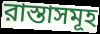
রাস্তাসমূহ